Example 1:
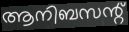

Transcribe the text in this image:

ആനിബസന്റ്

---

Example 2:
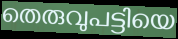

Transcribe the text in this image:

തെരുവുപട്ടിയെ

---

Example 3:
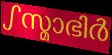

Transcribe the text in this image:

ഽസ്മാഭിർ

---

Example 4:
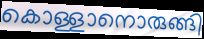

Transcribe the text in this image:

കൊള്ളാനൊരുങ്ങി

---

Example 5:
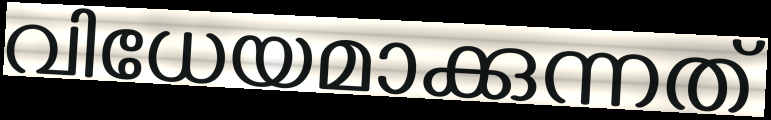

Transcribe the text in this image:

വിധേയമാക്കുന്നത്